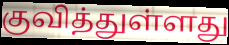
குவித்துள்ளது